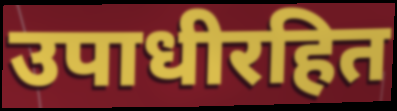
उपाधीरहित